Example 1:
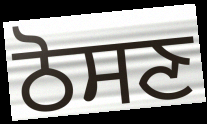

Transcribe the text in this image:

ਠੋਸਣ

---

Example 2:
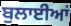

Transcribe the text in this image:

ਬੁਲਾਈਆਂ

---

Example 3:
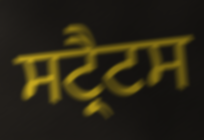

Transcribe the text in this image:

ਸਟ੍ਰੈਟਸ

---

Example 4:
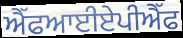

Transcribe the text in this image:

ਐੱਫਆਈਏਪੀਐੱਫ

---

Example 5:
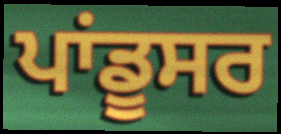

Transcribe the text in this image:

ਪਾਂਡੂਸਰ